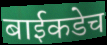
बाईकडेच